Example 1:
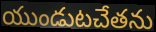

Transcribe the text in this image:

యుండుటచేతను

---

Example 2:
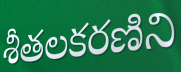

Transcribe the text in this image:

శీతలకరణిని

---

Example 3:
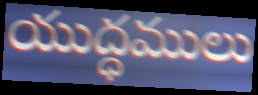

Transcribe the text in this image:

యుద్ధములు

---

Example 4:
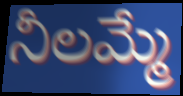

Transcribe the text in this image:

నీలమ్మే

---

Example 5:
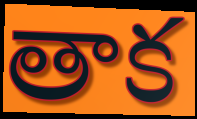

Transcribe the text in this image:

తాక